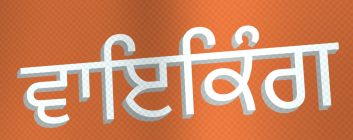
ਵਾਇਕਿੰਗ